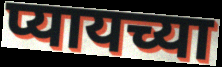
प्यायच्या